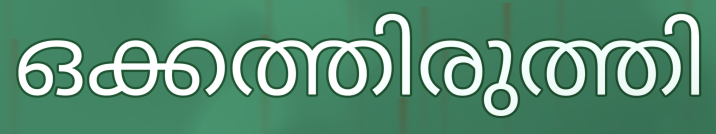
ഒക്കത്തിരുത്തി